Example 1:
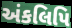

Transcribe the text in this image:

અંકલિપિ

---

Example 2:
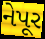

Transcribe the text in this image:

નેપૂર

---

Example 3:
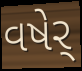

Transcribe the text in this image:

વષેર્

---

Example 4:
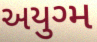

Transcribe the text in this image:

અયુગ્મ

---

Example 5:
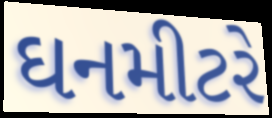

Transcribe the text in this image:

ઘનમીટરે